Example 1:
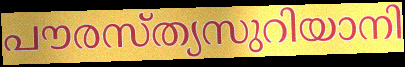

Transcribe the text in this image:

പൗരസ്ത്യസുറിയാനി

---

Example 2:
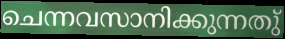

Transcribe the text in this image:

ചെന്നവസാനിക്കുന്നതു്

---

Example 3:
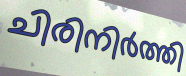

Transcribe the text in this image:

ചിരിനിർത്തി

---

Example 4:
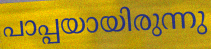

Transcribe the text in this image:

പാപ്പയായിരുന്നു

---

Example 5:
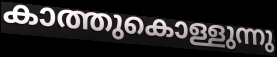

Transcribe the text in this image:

കാത്തുകൊള്ളുന്നു